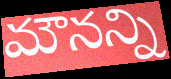
మౌనన్ని